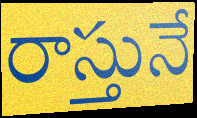
రాస్తునే